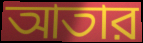
আতার